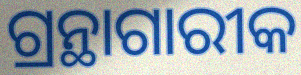
ଗ୍ରନ୍ଥାଗାରୀକ